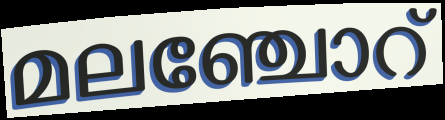
മലഞ്ചോറ്